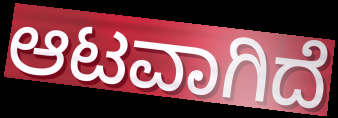
ಆಟವಾಗಿದೆ